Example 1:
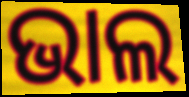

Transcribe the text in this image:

ଭାଲ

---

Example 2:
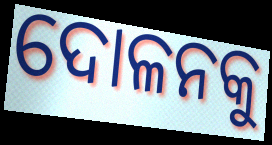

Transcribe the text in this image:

ଦୋଳନକୁ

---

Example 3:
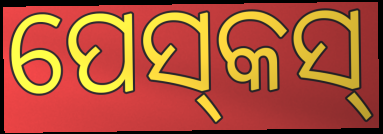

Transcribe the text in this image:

ପେସ୍‌କସ୍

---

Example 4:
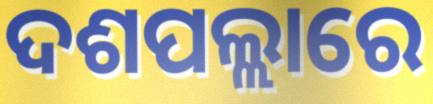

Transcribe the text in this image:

ଦଶପଲ୍ଲାରେ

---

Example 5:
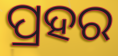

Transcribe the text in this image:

ପ୍ରହର